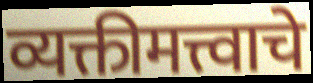
व्यक्तीमत्त्वाचे